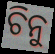
ଚିନୁ